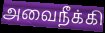
அவைநீக்கி